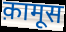
क़ामूस